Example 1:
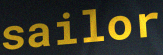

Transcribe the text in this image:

sailor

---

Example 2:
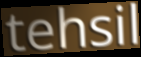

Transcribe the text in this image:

tehsil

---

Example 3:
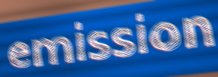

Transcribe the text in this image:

emission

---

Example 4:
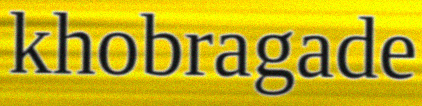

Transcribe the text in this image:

khobragade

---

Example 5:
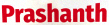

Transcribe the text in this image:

Prashanth